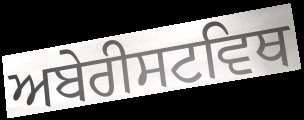
ਅਬੇਰੀਸਟਵਿਥ